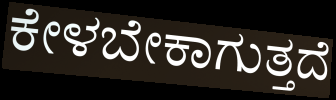
ಕೇಳಬೇಕಾಗುತ್ತದೆ